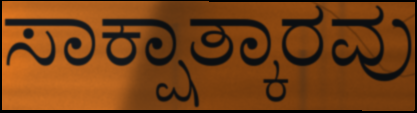
ಸಾಕ್ಷಾತ್ಕಾರವು